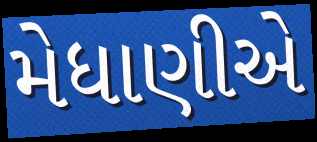
મેધાણીએ